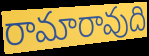
రామారావుది